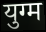
युग्म